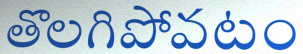
తొలగిపోవటం